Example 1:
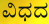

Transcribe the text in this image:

ವಿಧದ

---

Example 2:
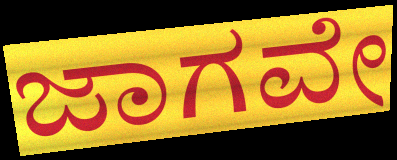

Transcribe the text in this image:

ಜಾಗವೇ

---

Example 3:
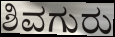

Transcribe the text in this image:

ಶಿವಗುರು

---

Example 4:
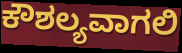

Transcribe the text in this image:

ಕೌಶಲ್ಯವಾಗಲಿ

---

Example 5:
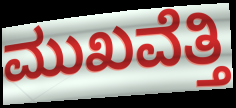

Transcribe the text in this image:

ಮುಖವೆತ್ತಿ